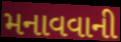
મનાવવાની